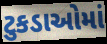
ટુકડાઓમાં